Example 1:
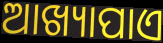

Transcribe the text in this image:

ଆଖ୍ୟାପାଏ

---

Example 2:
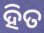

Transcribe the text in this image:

ହିତ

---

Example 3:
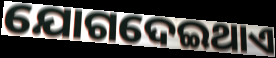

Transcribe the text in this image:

ଯୋଗଦେଇଥାଏ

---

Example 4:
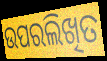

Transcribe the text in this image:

ଉପରଲିଖିତ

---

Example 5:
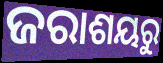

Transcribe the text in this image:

ଜରାଶୟରୁ